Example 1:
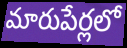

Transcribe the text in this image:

మారుపేర్లలో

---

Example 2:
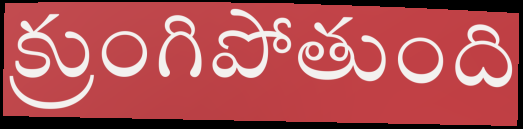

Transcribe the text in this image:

క్రుంగిపోతుంది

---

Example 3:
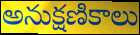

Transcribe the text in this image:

అనుక్షణికాలు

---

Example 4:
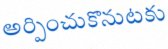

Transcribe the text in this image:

అర్పించుకొనుటకు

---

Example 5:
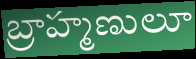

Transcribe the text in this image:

బ్రాహ్మణులూ